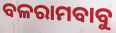
ବଳରାମବାବୁ